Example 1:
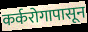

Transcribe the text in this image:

कर्करोगापासून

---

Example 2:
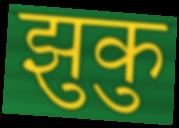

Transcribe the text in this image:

झुकु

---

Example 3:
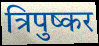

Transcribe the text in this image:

त्रिपुष्कर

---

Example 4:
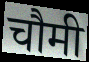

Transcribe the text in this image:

चौमी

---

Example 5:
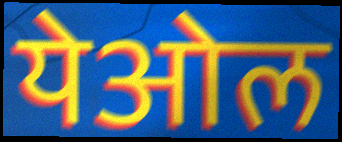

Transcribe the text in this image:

येओल